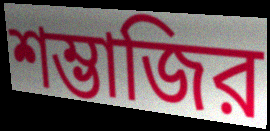
শম্ভাজির